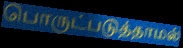
பொருட்படுத்தாமல்